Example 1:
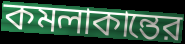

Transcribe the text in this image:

কমলাকান্তের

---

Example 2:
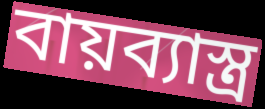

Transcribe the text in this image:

বায়ব্যাস্ত্র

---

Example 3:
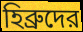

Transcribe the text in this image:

হিব্রুদের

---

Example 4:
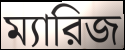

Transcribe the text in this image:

ম্যারিজ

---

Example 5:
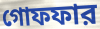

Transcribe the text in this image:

গোফফার